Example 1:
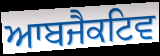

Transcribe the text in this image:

ਆਬਜੈਕਟਿਵ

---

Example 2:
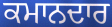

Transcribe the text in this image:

ਕਮਾਨਦਾਰ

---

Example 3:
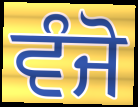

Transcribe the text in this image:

ਵੰਜੋ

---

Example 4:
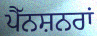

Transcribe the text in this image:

ਪੈੱਨਸ਼ਨਰਾਂ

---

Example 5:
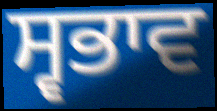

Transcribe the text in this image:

ਸ੍ਵਭਾਵ